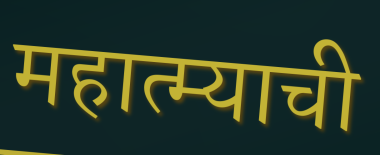
महात्म्याची